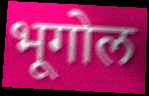
भूगोल